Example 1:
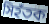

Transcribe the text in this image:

সিহঁতক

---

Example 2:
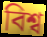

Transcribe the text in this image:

বিশ্ব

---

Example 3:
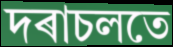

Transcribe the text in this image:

দৰাচলতে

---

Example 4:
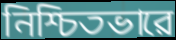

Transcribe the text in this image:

নিশ্চিতভাৱে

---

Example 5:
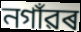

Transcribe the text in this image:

নগাঁৱৰ